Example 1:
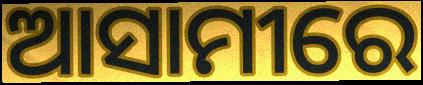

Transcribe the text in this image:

ଆସାମୀରେ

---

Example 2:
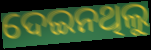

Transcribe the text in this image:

ଦେଇନଥିଲୁ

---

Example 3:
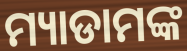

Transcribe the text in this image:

ମ୍ୟାଡାମଙ୍କ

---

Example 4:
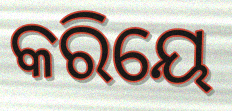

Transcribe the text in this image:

କରିୟେ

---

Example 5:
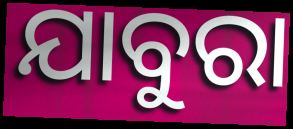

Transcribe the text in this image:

ଯାବୁରା